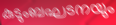
കുടുംബഘടനയും